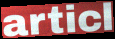
articl